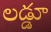
లడ్డూ